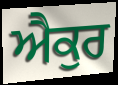
ਐਕੁਰ